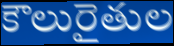
కౌలురైతుల